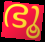
ഭൂ